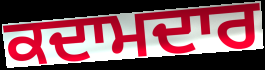
ਕਦਾਮਦਾਰ